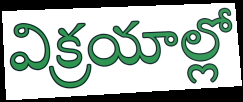
విక్రయాల్లో